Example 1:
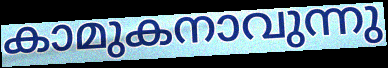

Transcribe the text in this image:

കാമുകനാവുന്നു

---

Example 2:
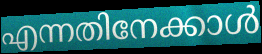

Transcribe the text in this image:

എന്നതിനേക്കാൾ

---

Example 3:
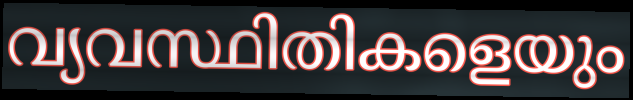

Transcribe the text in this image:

വ്യവസ്ഥിതികളെയും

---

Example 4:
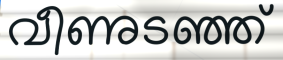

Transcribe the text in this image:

വീണുടഞ്ഞ്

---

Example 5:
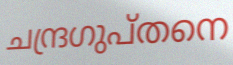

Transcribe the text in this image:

ചന്ദ്രഗുപ്തനെ